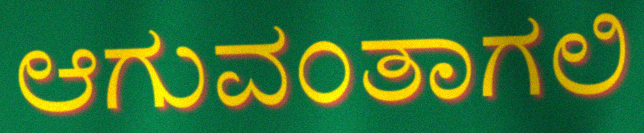
ಆಗುವಂತಾಗಲಿ